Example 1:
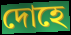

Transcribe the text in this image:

দোহে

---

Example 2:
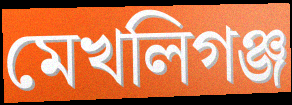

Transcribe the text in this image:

মেখলিগঞ্জ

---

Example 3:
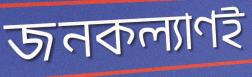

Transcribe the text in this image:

জনকল্যাণই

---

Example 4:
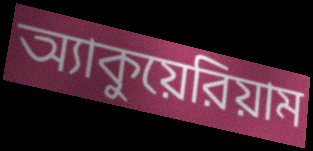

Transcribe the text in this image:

অ্যাকুয়েরিয়াম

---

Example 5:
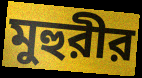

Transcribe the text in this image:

মুহুরীর